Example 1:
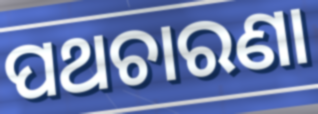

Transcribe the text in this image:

ପଥଚାରଣା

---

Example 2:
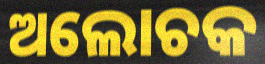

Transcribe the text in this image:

ଅଲୋଚକ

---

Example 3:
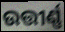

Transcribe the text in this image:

ଉତ୍ତୀର୍ଣ୍ଣ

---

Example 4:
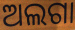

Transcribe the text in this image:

ଅଲଗା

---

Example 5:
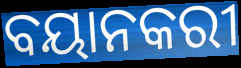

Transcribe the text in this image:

ବୟାନକରୀ